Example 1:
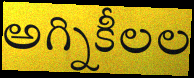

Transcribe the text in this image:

అగ్నికీలల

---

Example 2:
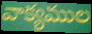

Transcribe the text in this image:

వాక్యముల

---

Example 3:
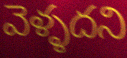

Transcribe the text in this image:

వెళ్ళదని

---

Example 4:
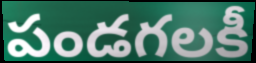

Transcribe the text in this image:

పండగలకీ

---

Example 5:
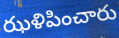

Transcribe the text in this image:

ఝళిపించారు